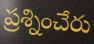
ప్రశ్నించేరు